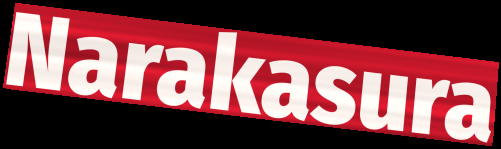
Narakasura